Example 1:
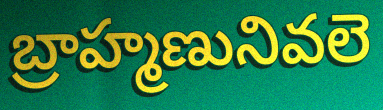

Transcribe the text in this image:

బ్రాహ్మణునివలె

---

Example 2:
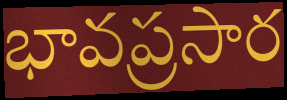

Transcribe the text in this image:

భావప్రసార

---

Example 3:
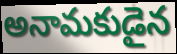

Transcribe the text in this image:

అనామకుడైన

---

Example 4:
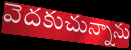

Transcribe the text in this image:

వెదకుచున్నాను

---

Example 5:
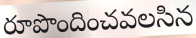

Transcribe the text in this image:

రూపొందించవలసిన